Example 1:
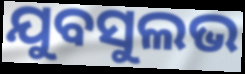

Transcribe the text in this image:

ଯୁବସୁଲଭ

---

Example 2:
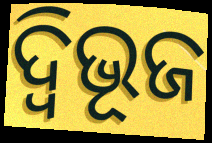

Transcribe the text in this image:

ଦ୍ବିଭୂଜ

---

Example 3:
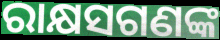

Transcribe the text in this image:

ରାକ୍ଷସଗଣଙ୍କ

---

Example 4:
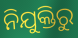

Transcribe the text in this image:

ନିଯୁକ୍ତିରୁ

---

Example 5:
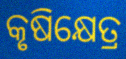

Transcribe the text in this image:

କୃଷିକ୍ଷେତ୍ର